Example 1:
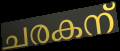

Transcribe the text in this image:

ചരകന്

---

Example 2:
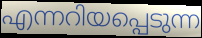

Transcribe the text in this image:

എന്നറിയപ്പെടുന്ന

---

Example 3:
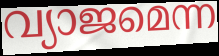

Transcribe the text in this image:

വ്യാജമെന്ന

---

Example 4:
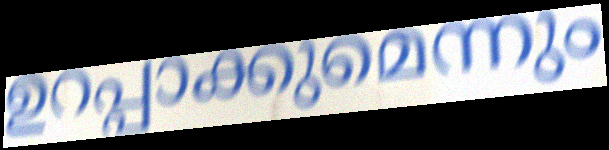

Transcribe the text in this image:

ഉറപ്പാക്കുമെന്നും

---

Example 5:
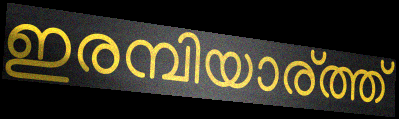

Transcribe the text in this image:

ഇരമ്പിയാര്ത്ത്